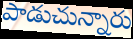
పాడుచున్నారు